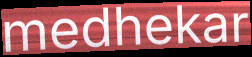
medhekar